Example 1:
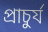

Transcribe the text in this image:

প্রাচুর্য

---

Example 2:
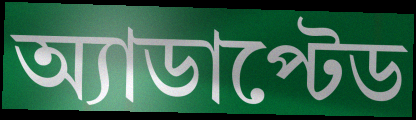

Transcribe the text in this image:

অ্যাডাপ্টেড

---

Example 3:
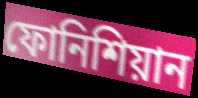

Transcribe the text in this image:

ফোনিশিয়ান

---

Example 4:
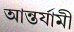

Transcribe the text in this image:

আন্তর্যামী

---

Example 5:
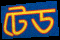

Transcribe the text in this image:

টেড